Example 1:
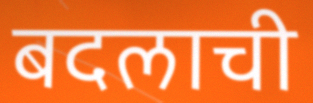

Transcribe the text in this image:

बदलाची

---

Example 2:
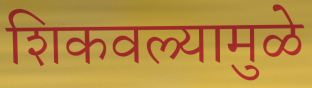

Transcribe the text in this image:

शिकवल्यामुळे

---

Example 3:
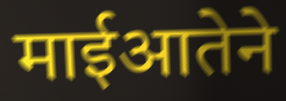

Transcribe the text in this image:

माईआतेने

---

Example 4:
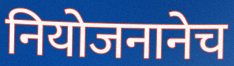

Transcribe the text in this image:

नियोजनानेच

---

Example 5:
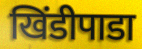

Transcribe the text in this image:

खिंडीपाडा